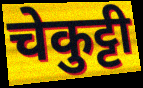
चेकुट्टी